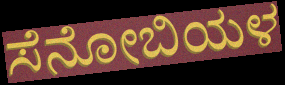
ಸೆನೋಬಿಯಳ